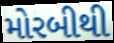
મોરબીથી